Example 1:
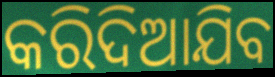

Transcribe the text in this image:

କରିଦିଆଯିବ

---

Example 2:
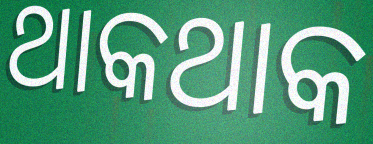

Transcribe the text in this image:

ଥାକଥାକ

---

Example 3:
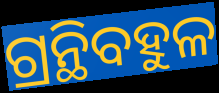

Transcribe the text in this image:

ଗ୍ରନ୍ଥିବହୁଳ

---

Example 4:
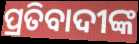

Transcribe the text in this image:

ପ୍ରତିବାଦୀଙ୍କ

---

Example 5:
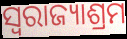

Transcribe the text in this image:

ସ୍ୱରାଜ୍ୟାଶ୍ରମ